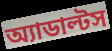
অ্যাডাল্টস